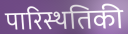
पारिस्थतिकी